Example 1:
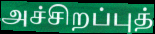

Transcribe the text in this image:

அச்சிறப்புத்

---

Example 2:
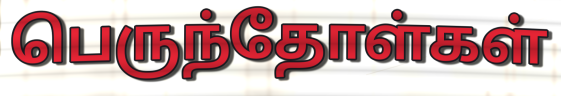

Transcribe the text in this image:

பெருந்தோள்கள்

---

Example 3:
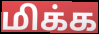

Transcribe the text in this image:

மிக்க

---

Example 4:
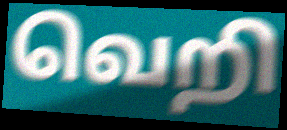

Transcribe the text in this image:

வெறி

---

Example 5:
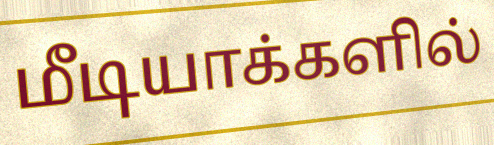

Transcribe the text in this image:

மீடியாக்களில்